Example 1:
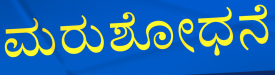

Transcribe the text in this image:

ಮರುಶೋಧನೆ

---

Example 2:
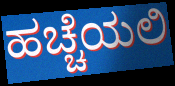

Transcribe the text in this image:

ಹಚ್ಚೆಯಲಿ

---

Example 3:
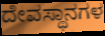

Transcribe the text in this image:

ದೇವಸ್ಥಾನಗಳ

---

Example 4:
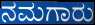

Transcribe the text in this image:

ನಮಗಾರು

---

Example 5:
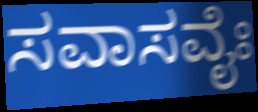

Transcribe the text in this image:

ಸವಾಸವೈಃ